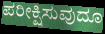
ಪರೀಕ್ಷಿಸುವುದೂ